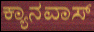
ಕ್ಯಾನವಾಸ್